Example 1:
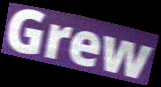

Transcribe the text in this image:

Grew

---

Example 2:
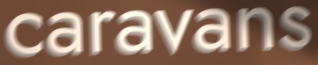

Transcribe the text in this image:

caravans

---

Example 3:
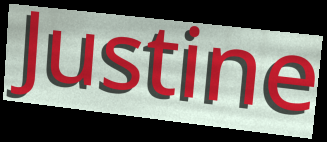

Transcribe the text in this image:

Justine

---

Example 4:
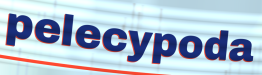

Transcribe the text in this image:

pelecypoda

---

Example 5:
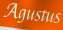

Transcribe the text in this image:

Agustus